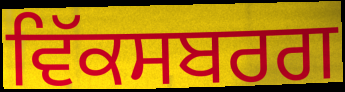
ਵਿੱਕਸਬਰਗ